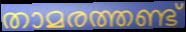
താമരത്തണ്ട്